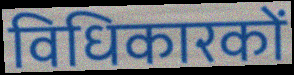
विधिकारकों